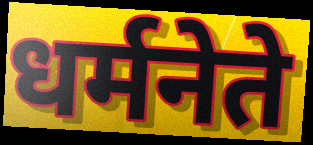
धर्मनेते